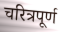
चरित्रपूर्ण